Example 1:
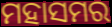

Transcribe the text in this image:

ମହାସମର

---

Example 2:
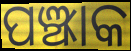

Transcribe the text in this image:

ପଞ୍ଝାକ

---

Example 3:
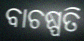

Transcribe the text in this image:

ବାଚଷ୍ପତି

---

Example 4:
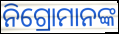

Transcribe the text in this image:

ନିଗ୍ରୋମାନଙ୍କ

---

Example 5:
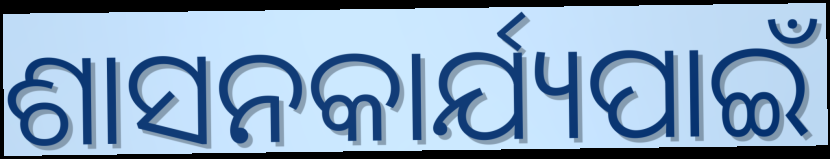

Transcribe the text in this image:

ଶାସନକାର୍ଯ୍ୟପାଇଁ